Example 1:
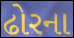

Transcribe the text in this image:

ઢોરના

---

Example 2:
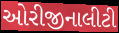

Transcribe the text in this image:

ઓરીજીનાલીટી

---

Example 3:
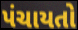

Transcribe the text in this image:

પંચાયતો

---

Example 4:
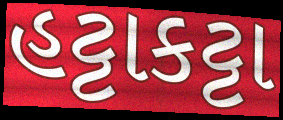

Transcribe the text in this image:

હટ્ટાકટ્ટા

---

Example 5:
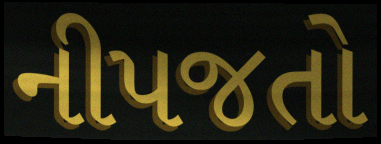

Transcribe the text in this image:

નીપજતો